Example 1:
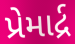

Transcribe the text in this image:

પ્રેમાર્દ્ર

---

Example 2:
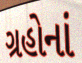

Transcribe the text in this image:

ગ્રહોનાં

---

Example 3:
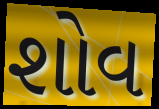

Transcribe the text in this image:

શોવ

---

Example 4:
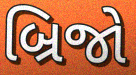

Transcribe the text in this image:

બ્રિજો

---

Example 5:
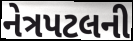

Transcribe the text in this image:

નેત્રપટલની